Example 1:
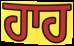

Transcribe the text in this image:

ਹਾਹ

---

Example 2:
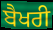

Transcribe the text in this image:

ਬੈਖਰੀ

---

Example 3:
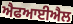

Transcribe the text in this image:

ਐਫਆਈਐਲ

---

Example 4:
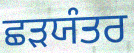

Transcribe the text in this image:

ਛੜਯੰਤਰ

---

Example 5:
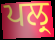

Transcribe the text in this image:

ਪਲ੍ਰ